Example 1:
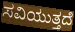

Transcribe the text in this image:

ಸವಿಯುತ್ತದೆ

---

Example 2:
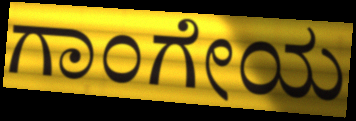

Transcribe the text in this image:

ಗಾಂಗೇಯ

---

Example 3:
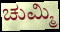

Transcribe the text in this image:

ಚುಮ್ಮಿ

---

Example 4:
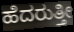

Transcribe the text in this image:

ಹೆದರುತ್ತೀ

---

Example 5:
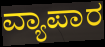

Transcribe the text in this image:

ವ್ಯಾಪಾರ